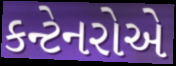
કન્ટેનરોએ